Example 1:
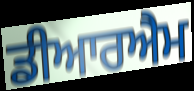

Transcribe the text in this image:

ਡੀਆਰਐਮ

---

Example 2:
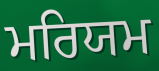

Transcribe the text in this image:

ਮਰਿਯਮ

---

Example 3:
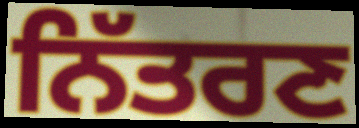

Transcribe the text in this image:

ਨਿੱਤਰਣ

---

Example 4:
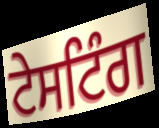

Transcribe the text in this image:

ਟੇਸਟਿੰਗ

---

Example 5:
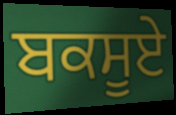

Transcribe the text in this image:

ਬਕਸੂਏ